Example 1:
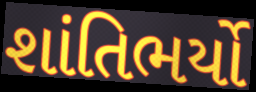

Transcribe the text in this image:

શાંતિભર્યો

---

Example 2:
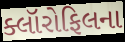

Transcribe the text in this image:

ક્લૉરોફિલના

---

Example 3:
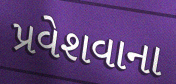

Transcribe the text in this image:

પ્રવેશવાના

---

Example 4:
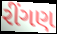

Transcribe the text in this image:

રીંગણ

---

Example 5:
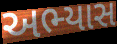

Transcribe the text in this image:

અભ્યાસ